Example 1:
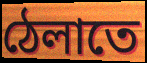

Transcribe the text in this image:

ঠেলাতে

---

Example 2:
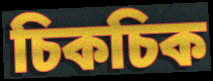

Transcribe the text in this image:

চিকচিক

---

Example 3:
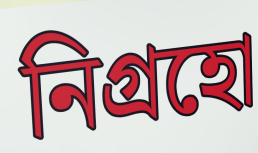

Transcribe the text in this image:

নিগ্রহো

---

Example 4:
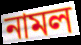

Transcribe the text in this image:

নামল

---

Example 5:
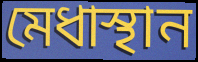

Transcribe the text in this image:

মেধাস্থান